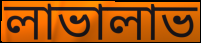
লাভালাভ